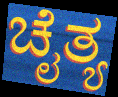
ಚೈತ್ಯ